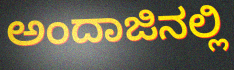
ಅಂದಾಜಿನಲ್ಲಿ